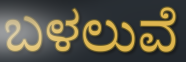
ಬಳಲುವೆ